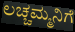
ಲಚ್ಚಮ್ಮನಿಗೆ